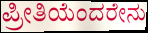
ಪ್ರೀತಿಯೆಂದರೇನು